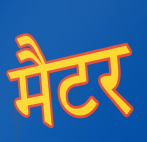
मैटर